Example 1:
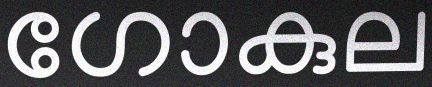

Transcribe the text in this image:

ഗോകുല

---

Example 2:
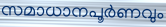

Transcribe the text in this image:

സമാധാനപൂർണവും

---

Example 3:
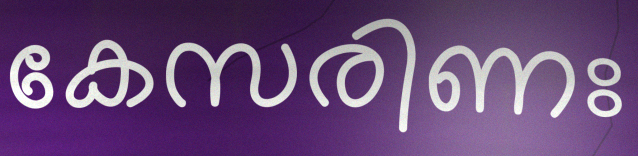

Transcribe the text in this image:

കേസരിണഃ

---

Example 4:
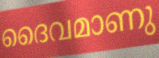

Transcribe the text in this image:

ദൈവമാണു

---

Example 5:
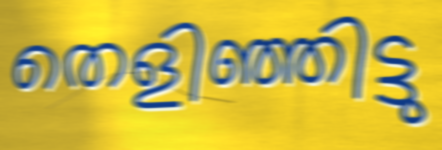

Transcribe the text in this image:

തെളിഞ്ഞിട്ടു